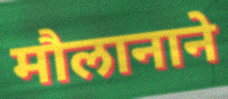
मौलानाने